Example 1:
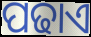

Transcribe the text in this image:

ପଢାଏ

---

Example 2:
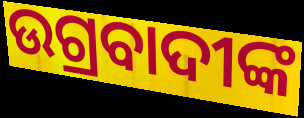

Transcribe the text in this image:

ଉଗ୍ରବାଦୀଙ୍କ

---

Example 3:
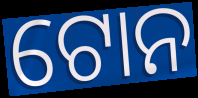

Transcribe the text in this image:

ଟୋନ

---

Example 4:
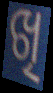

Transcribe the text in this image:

ଖି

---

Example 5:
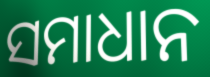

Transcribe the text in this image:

ସମାଧାନ